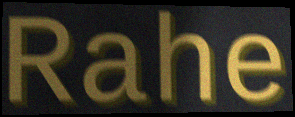
Rahe